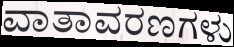
ವಾತಾವರಣಗಳು